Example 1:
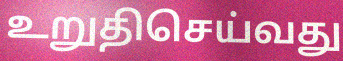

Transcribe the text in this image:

உறுதிசெய்வது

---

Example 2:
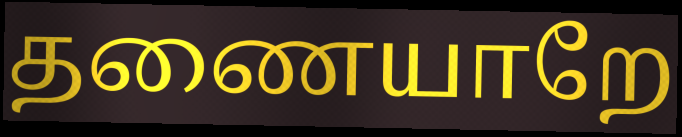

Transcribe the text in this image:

தணையாறே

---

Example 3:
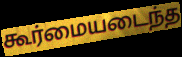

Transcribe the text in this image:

கூர்மையடைந்த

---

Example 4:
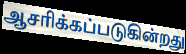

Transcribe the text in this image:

ஆசரிக்கப்படுகின்றது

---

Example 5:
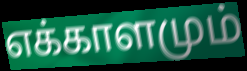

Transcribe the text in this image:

எக்காளமும்